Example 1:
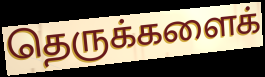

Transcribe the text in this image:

தெருக்களைக்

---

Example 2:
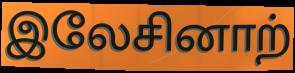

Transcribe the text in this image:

இலேசினாற்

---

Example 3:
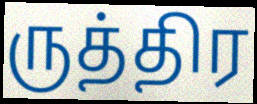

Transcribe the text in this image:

ருத்திர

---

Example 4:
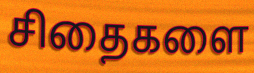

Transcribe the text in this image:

சிதைகளை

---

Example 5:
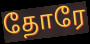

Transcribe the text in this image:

தோரே